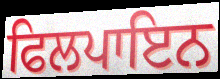
ਫਿਲਪਾਇਨ